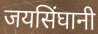
जयसिंघानी